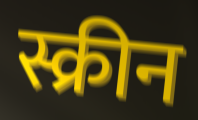
स्क्रीन